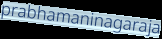
prabhamaninagaraja